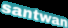
santwan